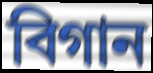
বিগান